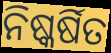
ନିଷ୍କର୍ଷିତ